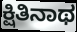
ಕ್ಷಿತಿನಾಥ